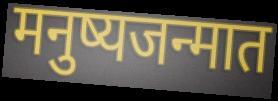
मनुष्यजन्मात